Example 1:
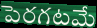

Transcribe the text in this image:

పెరగటమే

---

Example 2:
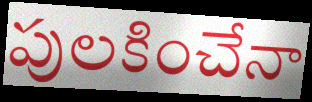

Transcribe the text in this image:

పులకించేనా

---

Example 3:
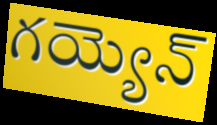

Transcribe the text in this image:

గయ్యెన్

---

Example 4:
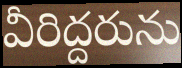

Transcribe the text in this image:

వీరిద్దరును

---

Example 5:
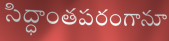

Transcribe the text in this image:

సిద్ధాంతపరంగానూ